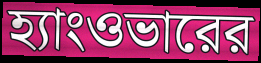
হ্যাংওভারের